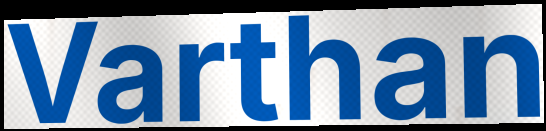
Varthan